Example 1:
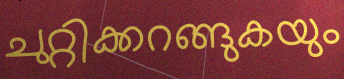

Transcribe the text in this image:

ചുറ്റിക്കറങ്ങുകയും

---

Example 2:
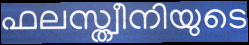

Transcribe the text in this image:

ഫലസ്ത്വീനിയുടെ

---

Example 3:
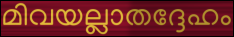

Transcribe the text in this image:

മിവയല്ലാതദ്ദേഹം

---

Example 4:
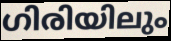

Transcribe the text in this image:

ഗിരിയിലും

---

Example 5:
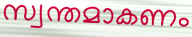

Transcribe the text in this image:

സ്വന്തമാകണം